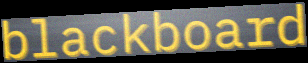
blackboard